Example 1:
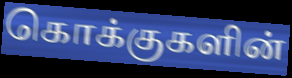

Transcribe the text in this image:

கொக்குகளின்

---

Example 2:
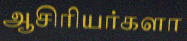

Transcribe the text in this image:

ஆசிரியர்களா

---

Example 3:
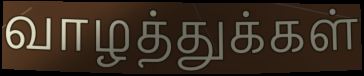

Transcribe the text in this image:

வாழத்துக்கள்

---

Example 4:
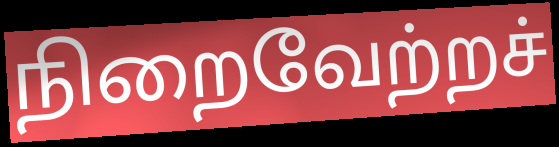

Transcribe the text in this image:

நிறைவேற்றச்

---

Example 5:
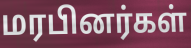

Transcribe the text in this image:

மரபினர்கள்